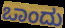
ಒಾಂದು